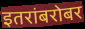
इतरांबरोबर